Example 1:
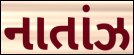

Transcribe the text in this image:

નાતાંઝ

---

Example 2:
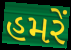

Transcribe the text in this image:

હમરેં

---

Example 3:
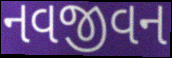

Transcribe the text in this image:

નવજીવન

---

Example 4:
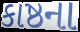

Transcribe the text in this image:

કાષ્ઠના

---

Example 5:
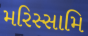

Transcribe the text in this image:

મરિસ્સામિ